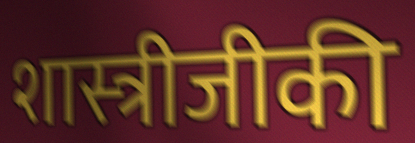
शास्त्रीजीकी